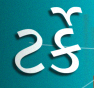
ટર્કે